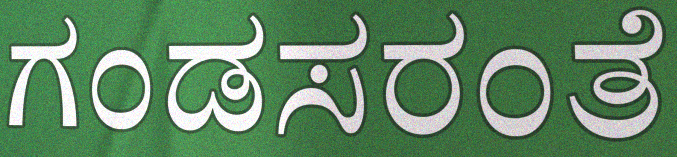
ಗಂಡಸರಂತೆ